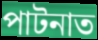
পাটনাত